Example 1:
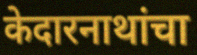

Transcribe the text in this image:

केदारनाथांचा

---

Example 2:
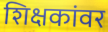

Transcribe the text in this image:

शिक्षकांवर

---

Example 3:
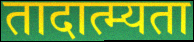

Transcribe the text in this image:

तादात्म्यता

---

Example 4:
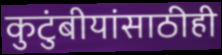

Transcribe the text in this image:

कुटुंबीयांसाठीही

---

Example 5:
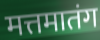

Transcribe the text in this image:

मत्तमातंग